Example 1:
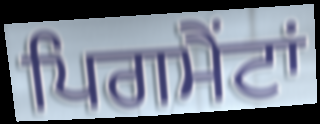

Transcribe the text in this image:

ਪਿਗਮੈਂਟਾਂ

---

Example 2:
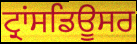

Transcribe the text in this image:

ਟ੍ਰਾਂਸਡਿਊਸਰ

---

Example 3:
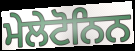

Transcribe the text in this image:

ਮੇਲੇਟੋਨਿਨ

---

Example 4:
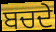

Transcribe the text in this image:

ਬਚਦੇ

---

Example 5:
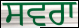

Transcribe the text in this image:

ਸਵਰਾ